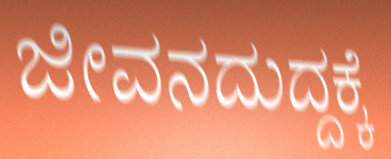
ಜೀವನದುದ್ದಕ್ಕೆ